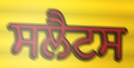
ਸਲੈਟਸ